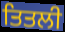
ਤਿਤਲੀ